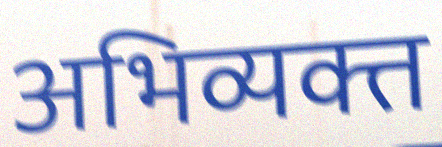
अभिव्यक्त